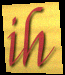
ih